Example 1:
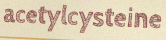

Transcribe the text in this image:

acetylcysteine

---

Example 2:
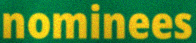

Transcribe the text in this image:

nominees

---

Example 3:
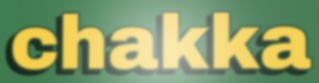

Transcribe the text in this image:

chakka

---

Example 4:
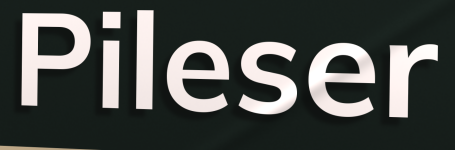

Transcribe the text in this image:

Pileser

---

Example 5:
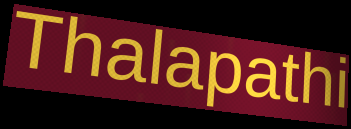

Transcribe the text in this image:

Thalapathi